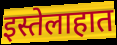
इस्तेलाहात